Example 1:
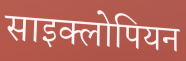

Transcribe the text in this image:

साइक्लोपियन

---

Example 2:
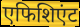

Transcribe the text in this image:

एफिशिएंट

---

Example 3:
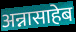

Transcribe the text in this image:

अन्नासाहेब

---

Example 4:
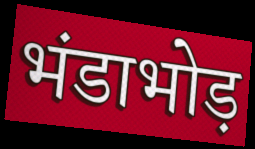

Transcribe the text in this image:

भंडाभोड़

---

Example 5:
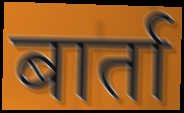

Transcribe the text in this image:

बार्ता